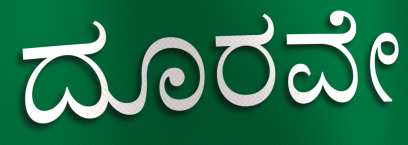
ದೂರವೇ